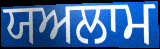
ਯਅਲਾਮ